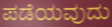
ಪಡೆಯವುದು